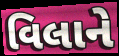
વિલાને